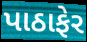
પાઠાફેર